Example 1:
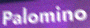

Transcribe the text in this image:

Palomino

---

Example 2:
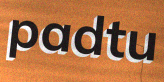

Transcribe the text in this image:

padtu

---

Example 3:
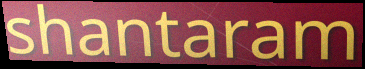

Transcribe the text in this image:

shantaram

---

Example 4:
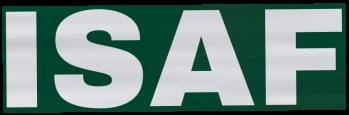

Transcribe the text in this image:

ISAF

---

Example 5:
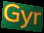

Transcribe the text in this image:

Gyr